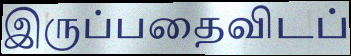
இருப்பதைவிடப்